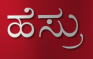
ಹೆಸ್ರು